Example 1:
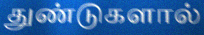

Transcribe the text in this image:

துண்டுகளால்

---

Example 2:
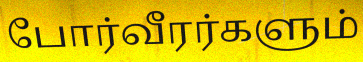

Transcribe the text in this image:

போர்வீரர்களும்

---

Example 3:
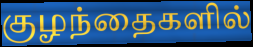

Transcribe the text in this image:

குழந்தைகளில்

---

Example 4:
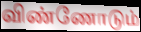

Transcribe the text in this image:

விண்ணோடும்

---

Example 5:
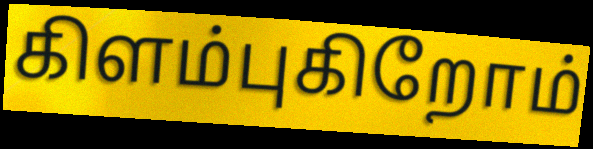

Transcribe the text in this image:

கிளம்புகிறோம்